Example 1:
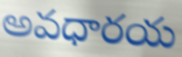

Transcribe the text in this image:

అవధారయ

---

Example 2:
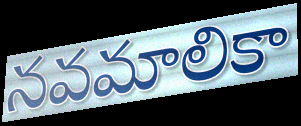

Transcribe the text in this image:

నవమాలికా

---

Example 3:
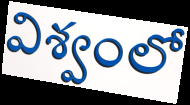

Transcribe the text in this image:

విశ్వంలో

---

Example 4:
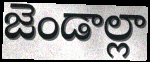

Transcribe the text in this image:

జెండాల్లా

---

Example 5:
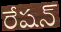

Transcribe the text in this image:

రేషన్